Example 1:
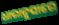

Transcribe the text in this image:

ଧାରାନୁସାରେ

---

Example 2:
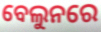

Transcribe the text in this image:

ବେଲୁନରେ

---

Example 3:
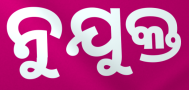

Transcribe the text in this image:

ନୁଯୁକ୍ତ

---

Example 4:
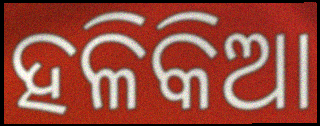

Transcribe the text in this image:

ହଳିକିଆ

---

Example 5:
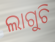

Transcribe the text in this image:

ଲାଗୁଚି